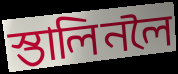
স্তালিনলৈ